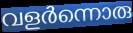
വളർന്നൊരു